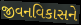
જીવનવિકાસને